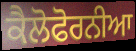
ਕੈਲੋਫੋਰਨੀਆ